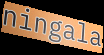
ningala